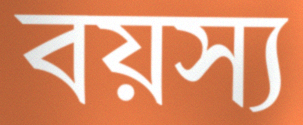
বয়স্য